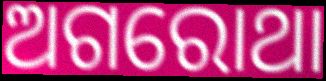
ଅଗରୋଥା